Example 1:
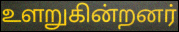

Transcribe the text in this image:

உளறுகின்றனர்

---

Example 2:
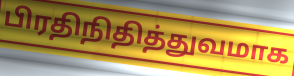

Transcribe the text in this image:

பிரதிநிதித்துவமாக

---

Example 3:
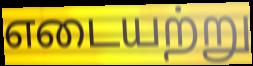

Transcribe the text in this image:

எடையற்று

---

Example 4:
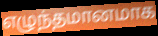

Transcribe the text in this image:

எழுந்தமானமாக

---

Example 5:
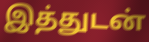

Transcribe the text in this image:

இத்துடன்